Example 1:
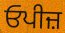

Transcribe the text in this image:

ਓਪੀਜ਼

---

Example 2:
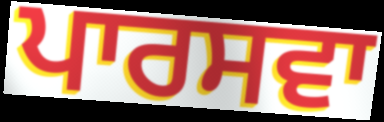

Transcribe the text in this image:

ਪਾਰਸਵਾ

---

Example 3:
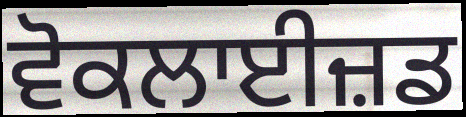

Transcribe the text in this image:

ਵੋਕਲਾਈਜ਼ਡ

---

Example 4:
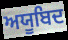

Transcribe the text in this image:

ਅਯੂਬਿਦ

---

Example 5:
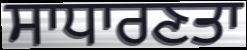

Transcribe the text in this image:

ਸਾਧਾਰਣਤਾ